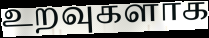
உறவுகளாக